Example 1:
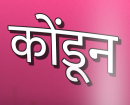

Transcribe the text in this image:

कोंडून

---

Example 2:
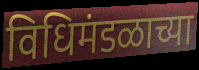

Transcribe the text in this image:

विधिमंडळाच्या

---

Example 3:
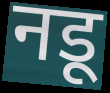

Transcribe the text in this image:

नडू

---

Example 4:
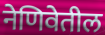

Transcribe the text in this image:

नेणिवेतील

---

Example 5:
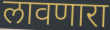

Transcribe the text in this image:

लावणारा